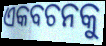
ଏକବଚନକୁ